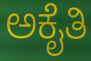
ಅಕೈತಿ